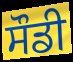
ਸੌਡੀ